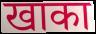
खाका